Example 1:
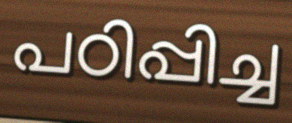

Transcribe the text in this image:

പഠിപ്പിച്ച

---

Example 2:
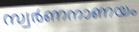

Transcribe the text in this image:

സ്വർണനാണയം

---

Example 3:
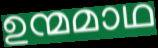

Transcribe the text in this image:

ഉന്മമാഥ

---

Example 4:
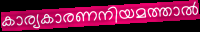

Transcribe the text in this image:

കാര്യകാരണനിയമത്താൽ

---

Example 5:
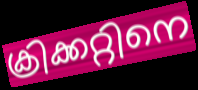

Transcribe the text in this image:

ക്രിക്കറ്റിനെ